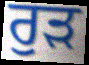
ਰੁੜ